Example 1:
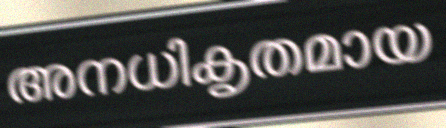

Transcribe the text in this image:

അനധികൃതമായ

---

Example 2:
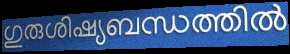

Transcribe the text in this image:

ഗുരുശിഷ്യബന്ധത്തിൽ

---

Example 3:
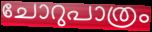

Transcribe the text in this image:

ചോറുപാത്രം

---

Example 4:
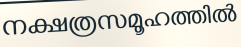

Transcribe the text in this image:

നക്ഷത്രസമൂഹത്തിൽ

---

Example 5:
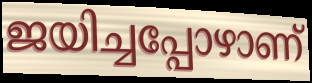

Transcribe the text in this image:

ജയിച്ചപ്പോഴാണ്